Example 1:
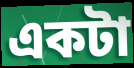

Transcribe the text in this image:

একটা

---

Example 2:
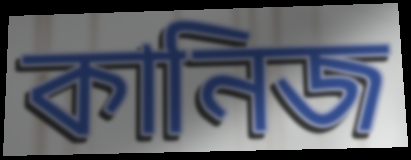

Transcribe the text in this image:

কানিজ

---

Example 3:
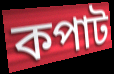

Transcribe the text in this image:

কপাট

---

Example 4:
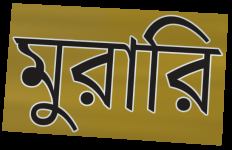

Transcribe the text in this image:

মুরারি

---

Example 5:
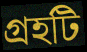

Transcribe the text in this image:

গ্রহটি